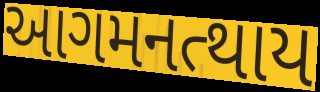
આગમનત્થાય